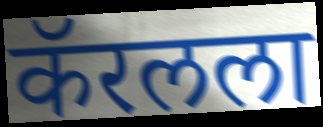
कॅरलला